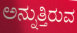
ಅನ್ನುತ್ತಿರುವ